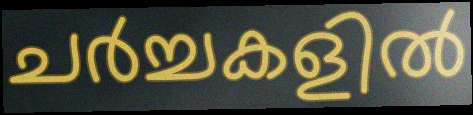
ചർച്ചകളിൽ